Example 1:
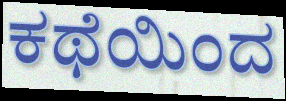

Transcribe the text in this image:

ಕಥೆಯಿಂದ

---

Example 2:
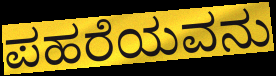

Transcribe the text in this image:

ಪಹರೆಯವನು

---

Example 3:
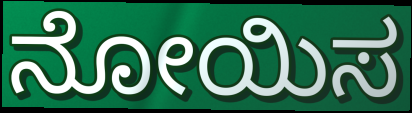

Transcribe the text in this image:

ನೋಯಿಸ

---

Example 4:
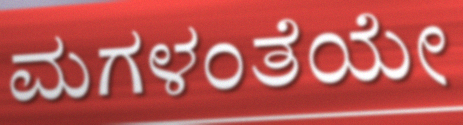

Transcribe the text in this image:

ಮಗಳಂತೆಯೇ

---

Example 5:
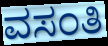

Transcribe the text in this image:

ವಸಂತಿ